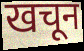
खचून